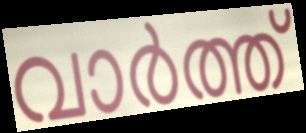
വാർത്ത്